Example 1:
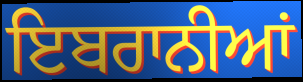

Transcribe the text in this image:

ਇਬਰਾਨੀਆਂ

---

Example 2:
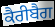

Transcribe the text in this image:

ਕੈਰੀਬੈਗ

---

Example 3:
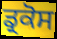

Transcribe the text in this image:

ਡ੍ਰਕੋਸ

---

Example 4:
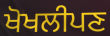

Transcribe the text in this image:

ਖੋਖਲੀਪਣ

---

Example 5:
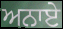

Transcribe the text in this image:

ਅਨਾਏ